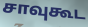
சாவுகூட